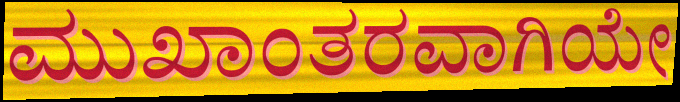
ಮುಖಾಂತರವಾಗಿಯೇ